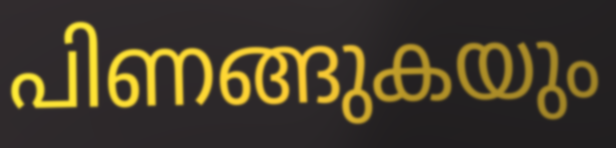
പിണങ്ങുകയും